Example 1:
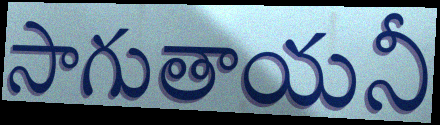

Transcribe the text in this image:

సాగుతాయనీ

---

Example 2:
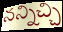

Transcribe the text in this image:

నన్నిచ్చి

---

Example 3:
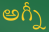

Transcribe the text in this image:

అగ్నీ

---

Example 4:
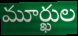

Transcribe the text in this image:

మూర్ఖుల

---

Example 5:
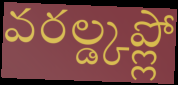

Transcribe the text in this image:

వరల్డ్కప్ల్లో